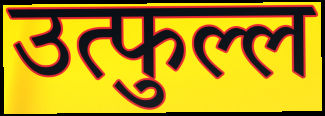
उत्फुल्ल